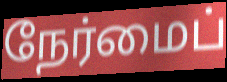
நேர்மைப்